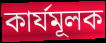
কার্যমূলক